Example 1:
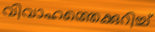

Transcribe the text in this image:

വിവാഹത്തെക്കുറിച്ച്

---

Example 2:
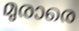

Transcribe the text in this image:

മുരാരെ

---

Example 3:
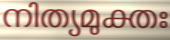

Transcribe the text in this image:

നിത്യമുക്തഃ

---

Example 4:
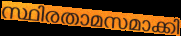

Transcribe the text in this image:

സ്ഥിരതാമസമാക്കി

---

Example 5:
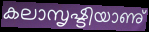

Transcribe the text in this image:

കലാസൃഷ്ടിയാണു്